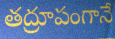
తద్రూపంగానే